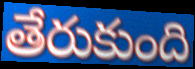
తేరుకుంది